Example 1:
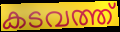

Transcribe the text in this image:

കടവത്ത്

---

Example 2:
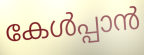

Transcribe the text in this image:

കേൾപ്പാൻ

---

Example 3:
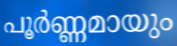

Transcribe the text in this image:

പൂർണ്ണമായും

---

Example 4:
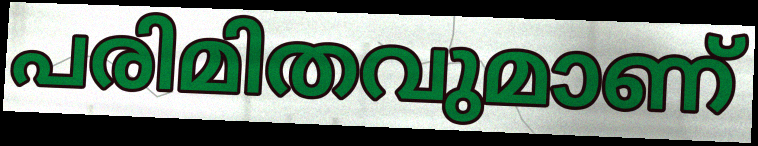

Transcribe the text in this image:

പരിമിതവുമാണ്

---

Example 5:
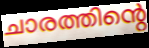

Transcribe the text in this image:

ചാരത്തിന്റെ